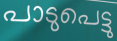
പാടുപെട്ടു